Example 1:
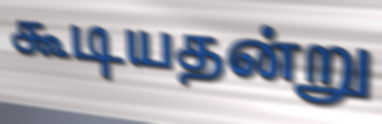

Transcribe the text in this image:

கூடியதன்று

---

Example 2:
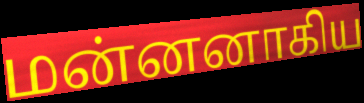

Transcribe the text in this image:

மன்னனாகிய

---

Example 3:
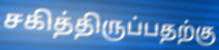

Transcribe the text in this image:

சகித்திருப்பதற்கு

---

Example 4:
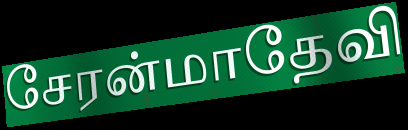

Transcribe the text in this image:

சேரன்மாதேவி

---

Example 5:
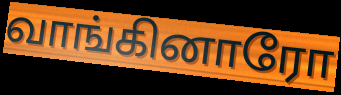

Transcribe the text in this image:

வாங்கினாரோ